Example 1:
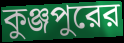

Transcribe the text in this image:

কুঞ্জপুরের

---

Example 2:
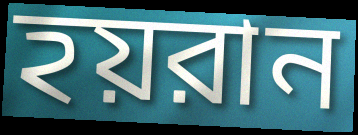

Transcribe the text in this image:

হয়রান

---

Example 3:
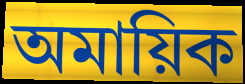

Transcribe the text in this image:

অমায়িক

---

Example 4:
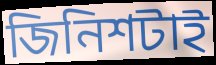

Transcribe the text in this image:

জিনিশটাই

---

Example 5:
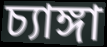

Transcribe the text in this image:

চ্যাঙ্গা